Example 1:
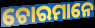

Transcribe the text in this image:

ଚୋରମାନେ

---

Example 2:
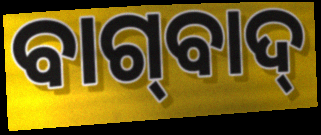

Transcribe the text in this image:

ବାଗ୍‌ବାଦ୍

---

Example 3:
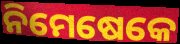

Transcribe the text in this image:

ନିମେଷେକେ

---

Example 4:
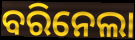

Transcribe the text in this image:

ବରିନେଲା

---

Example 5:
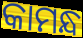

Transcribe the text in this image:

କାମନ୍ଧ